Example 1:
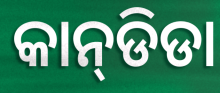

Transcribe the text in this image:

କାନ୍‌ଡିଡା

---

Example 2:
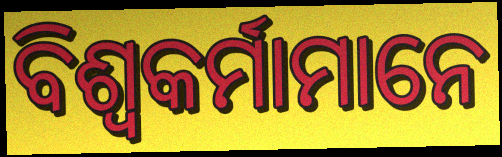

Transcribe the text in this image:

ବିଶ୍ଵକର୍ମାମାନେ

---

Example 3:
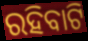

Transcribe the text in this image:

ରହିବାଟି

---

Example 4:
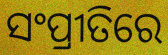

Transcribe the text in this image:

ସଂପ୍ରୀତିରେ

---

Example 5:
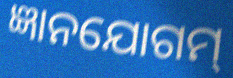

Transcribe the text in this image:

ଜ୍ଞାନଯୋଗମ୍